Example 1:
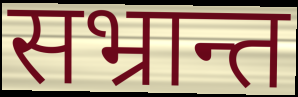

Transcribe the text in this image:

सभ्रान्त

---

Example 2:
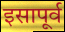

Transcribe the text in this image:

इसापूर्व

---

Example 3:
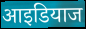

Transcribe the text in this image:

आइडियाज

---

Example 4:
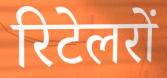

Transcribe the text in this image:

रिटेलरों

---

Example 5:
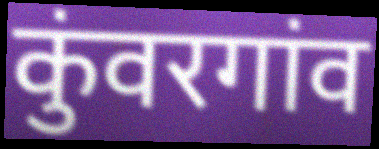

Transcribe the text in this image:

कुंवरगांव